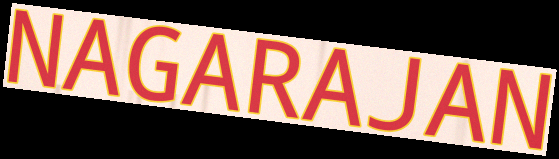
NAGARAJAN